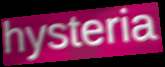
hysteria